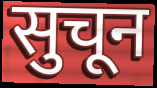
सुचून